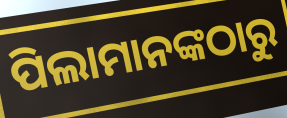
ପିଲାମାନଙ୍କଠାରୁ